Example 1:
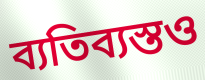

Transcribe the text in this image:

ব্যতিব্যস্তও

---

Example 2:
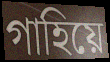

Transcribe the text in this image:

গাহিয়ে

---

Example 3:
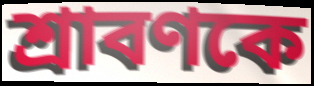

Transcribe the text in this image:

শ্রাবণকে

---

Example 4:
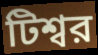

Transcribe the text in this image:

টিশ্বর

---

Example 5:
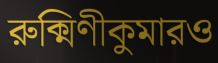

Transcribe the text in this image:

রুক্মিণীকুমারও